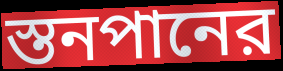
স্তনপানের